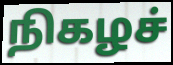
நிகழச்